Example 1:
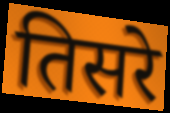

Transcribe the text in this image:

तिसरे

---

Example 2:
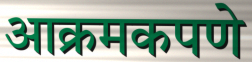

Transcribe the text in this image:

आक्रमकपणे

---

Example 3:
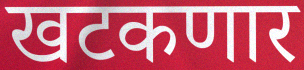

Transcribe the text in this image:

खटकणार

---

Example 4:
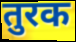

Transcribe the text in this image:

तुरक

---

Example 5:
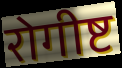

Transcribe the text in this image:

रोगीष्ट